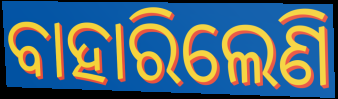
ବାହାରିଲେଣି